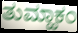
ತುಮ್ಹಾಕಂ